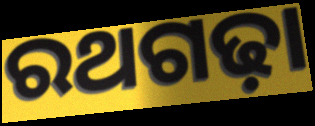
ରଥଗଢ଼ା